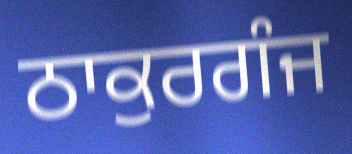
ਠਾਕੁਰਗੰਜ